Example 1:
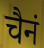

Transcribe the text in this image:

चैनं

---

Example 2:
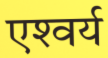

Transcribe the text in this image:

एश्‍वर्य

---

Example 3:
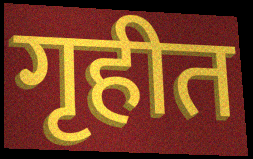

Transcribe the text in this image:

गृहीत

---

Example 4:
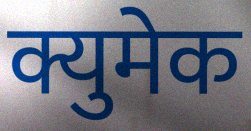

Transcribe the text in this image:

क्युमेक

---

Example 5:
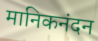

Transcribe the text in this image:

मानिकनंदन